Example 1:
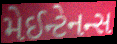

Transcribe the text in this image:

મેઈન્ટેનન્સ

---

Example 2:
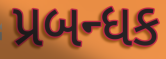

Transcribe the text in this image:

પ્રબન્ધક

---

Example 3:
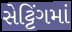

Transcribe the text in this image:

સેટ્ટિંગમાં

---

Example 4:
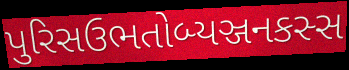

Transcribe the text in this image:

પુરિસઉભતોબ્યઞ્જનકસ્સ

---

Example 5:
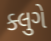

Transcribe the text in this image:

ક્લુગે